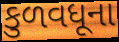
કુળવધૂના